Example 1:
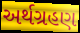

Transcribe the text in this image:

અર્થગ્રહણ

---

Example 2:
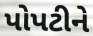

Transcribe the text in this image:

પોપટીને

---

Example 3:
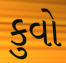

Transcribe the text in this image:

કુવો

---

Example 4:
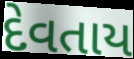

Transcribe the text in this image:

દેવતાય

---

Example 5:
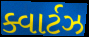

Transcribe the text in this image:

ક્વાર્ટઝ